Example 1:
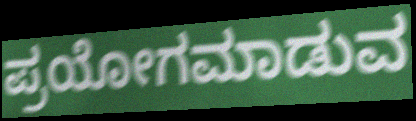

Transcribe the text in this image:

ಪ್ರಯೋಗಮಾಡುವ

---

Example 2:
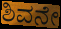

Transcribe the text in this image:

ಶಿವನೇ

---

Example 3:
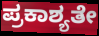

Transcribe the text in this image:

ಪ್ರಕಾಶ್ಯತೇ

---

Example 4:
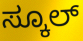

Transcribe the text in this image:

ಸ್ಕೂಲ್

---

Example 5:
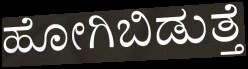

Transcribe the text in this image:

ಹೋಗಿಬಿಡುತ್ತೆ